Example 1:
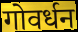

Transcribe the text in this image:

गोवर्धन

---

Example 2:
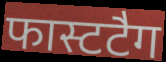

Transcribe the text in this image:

फास्टटैग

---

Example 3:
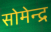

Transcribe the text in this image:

सोमेन्द्र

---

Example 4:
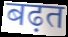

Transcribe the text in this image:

बढ़त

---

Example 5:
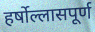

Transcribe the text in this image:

हर्षोल्लासपूर्ण